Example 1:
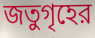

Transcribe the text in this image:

জতুগৃহের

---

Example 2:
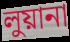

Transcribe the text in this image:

লুয়ানা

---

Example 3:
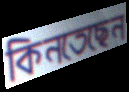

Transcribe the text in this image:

কিনতেছেন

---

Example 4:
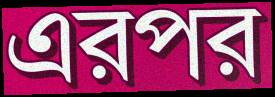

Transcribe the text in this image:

এরপর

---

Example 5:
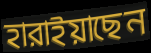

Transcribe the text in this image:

হারাইয়াছেন